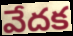
వేదక